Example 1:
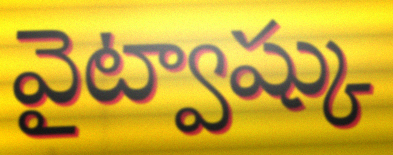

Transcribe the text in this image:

వైట్వాష్కు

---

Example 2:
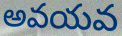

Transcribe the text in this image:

అవయవ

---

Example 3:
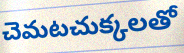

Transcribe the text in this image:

చెమటచుక్కలతో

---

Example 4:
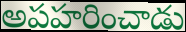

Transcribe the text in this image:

అపహరించాడు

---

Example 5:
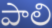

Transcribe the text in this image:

పాలి